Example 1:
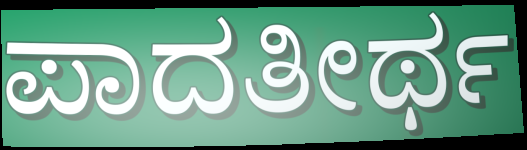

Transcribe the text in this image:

ಪಾದತೀರ್ಥ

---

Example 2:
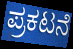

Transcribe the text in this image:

ಪ್ರಕಟನೆ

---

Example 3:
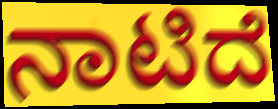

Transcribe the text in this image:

ನಾಟಿದೆ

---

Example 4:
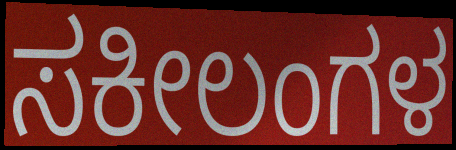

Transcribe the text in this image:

ಸಕೀಲಂಗಳ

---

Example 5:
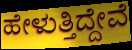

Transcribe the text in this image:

ಹೇಳುತ್ತಿದ್ದೇವೆ